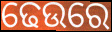
ଢେଉରେ